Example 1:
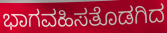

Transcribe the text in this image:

ಭಾಗವಹಿಸತೊಡಗಿದ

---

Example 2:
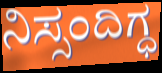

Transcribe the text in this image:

ನಿಸ್ಸಂದಿಗ್ಧ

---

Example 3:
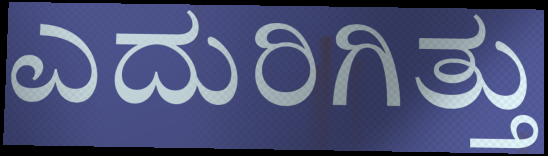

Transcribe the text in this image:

ಎದುರಿಗಿತ್ತು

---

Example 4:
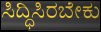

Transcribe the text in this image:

ಸಿದ್ಧಿಸಿರಬೇಕು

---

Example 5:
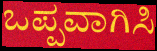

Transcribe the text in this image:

ಒಪ್ಪವಾಗಿಸಿ